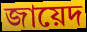
জায়েদ